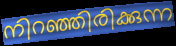
നിറഞ്ഞിരിക്കുന്ന